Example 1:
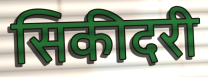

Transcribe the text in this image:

सिकीदरी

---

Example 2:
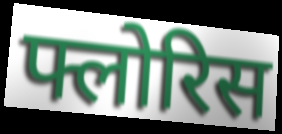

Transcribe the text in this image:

फ्लोरिस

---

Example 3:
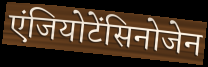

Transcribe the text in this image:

एंजियोटेंसिनोजेन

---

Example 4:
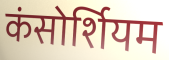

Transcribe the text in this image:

कंसोर्शियम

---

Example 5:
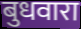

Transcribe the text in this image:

बुधवारा